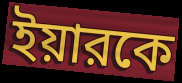
ইয়ারকে